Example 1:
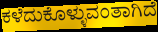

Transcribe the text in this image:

ಕಳೆದುಕೊಳ್ಳುವಂತಾಗಿದೆ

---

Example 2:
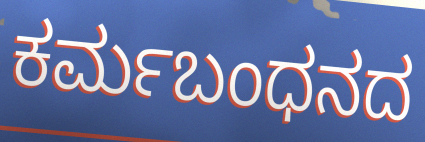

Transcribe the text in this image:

ಕರ್ಮಬಂಧನದ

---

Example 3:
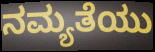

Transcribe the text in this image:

ನಮ್ಯತೆಯು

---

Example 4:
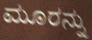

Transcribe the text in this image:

ಮೂರನ್ನು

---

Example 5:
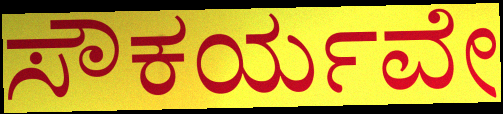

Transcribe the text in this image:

ಸೌಕರ್ಯವೇ